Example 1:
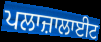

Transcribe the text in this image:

ਪਲਾਜ਼ਾਲਾਈਟ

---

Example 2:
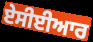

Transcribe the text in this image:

ਏਸੀਈਆਰ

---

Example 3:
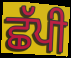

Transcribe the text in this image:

ਛੱਪੀ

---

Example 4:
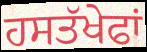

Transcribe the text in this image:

ਹਸਤੱਖੇਫਾਂ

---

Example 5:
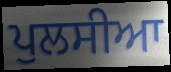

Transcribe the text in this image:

ਪੁਲਸੀਆ